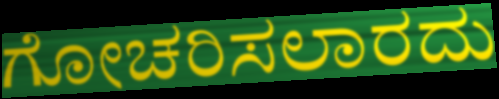
ಗೋಚರಿಸಲಾರದು